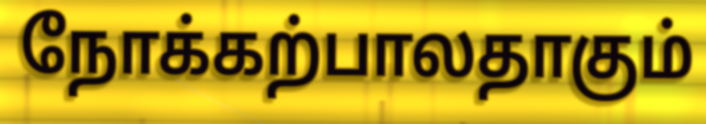
நோக்கற்பாலதாகும்